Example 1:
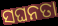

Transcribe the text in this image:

ସଘନତା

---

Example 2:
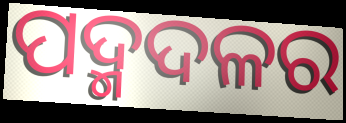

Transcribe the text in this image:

ପଦ୍ମଦଳର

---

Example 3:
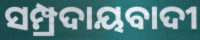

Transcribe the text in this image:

ସମ୍ପ୍ରଦାୟବାଦୀ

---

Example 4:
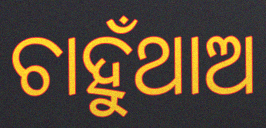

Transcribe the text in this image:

ଚାହୁଁଥାଅ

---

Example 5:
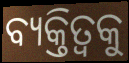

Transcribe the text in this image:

ବ୍ୟକ୍ତିତ୍ଵକୁ